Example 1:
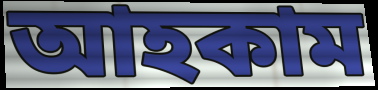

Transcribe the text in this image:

আহকাম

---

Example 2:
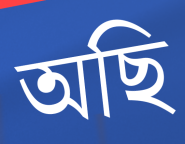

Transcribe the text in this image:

অছি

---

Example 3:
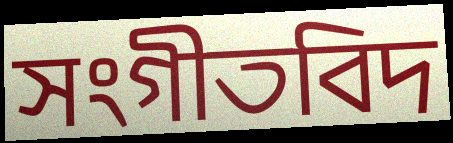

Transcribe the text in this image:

সংগীতবিদ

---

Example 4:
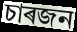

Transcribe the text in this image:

চাৰজন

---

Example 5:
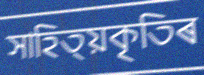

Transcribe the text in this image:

সাহিত্য়কৃতিৰ